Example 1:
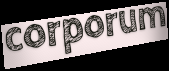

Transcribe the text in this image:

corporum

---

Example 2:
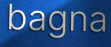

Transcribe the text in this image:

bagna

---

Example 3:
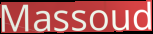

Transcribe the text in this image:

Massoud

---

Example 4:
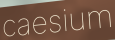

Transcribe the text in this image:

caesium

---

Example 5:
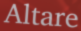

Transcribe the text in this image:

Altare